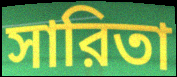
সারিতা